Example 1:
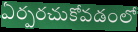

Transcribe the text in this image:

ఏర్పరచుకోవడంలో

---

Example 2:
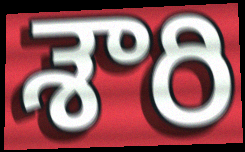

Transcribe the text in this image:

శౌరి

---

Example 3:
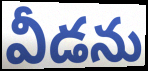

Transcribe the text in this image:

వీడను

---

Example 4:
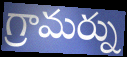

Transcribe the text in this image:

గ్రామర్ను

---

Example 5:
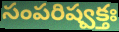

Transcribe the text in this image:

సంపరిష్వక్తః